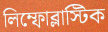
লিম্ফোব্লাস্টিক